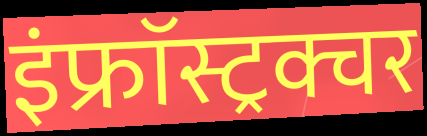
इंफ्रॉस्ट्रक्चर